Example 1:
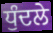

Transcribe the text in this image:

ਧੁੰਦਲੇ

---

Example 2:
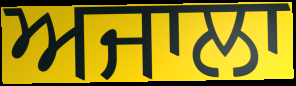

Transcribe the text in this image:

ਅਜਾਲਾ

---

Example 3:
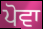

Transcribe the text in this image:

ਪੋਵਾ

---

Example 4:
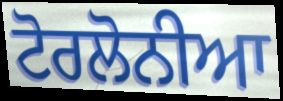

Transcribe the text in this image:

ਟੋਰਲੋਨੀਆ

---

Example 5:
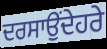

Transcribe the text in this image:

ਦਰਸਾਉਂਦੇਹਰੇ